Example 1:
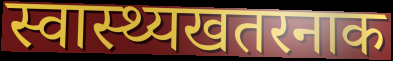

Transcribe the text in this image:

स्वास्थ्यखतरनाक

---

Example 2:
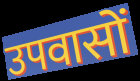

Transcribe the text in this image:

उपवासों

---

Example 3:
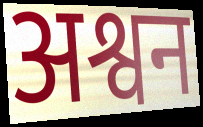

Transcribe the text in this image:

अश्वन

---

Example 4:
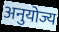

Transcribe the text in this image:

अनुयोज्य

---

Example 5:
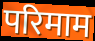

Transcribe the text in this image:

परिमाम